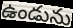
ఉండును